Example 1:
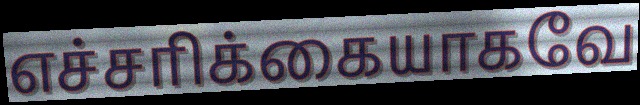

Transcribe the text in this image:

எச்சரிக்கையாகவே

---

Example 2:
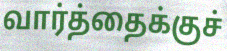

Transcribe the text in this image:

வார்த்தைக்குச்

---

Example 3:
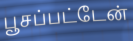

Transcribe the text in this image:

பூசப்பட்டேன்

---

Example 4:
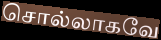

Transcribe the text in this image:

சொல்லாகவே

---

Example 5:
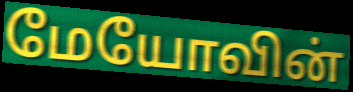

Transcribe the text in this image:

மேயோவின்